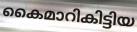
കൈമാറികിട്ടിയ